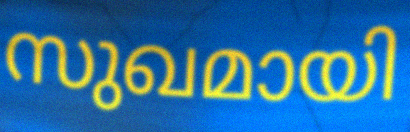
സുഖമായി